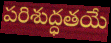
పరిశుద్ధతయే